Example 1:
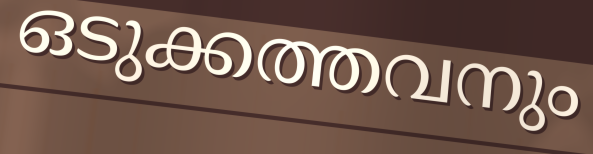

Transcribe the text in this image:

ഒടുക്കത്തവനും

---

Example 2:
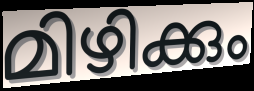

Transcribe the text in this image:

മിഴിക്കും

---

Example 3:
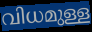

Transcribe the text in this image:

വിധമുള്ള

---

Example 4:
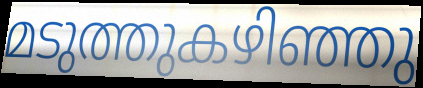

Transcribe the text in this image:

മടുത്തുകഴിഞ്ഞു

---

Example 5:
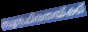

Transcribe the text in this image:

സുസ്ഥിരതയ്ക്ക്